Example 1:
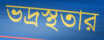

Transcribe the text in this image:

ভদ্রস্থতার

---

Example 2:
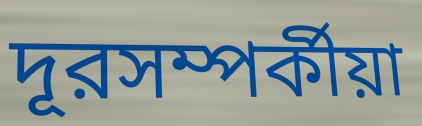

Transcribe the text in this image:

দূরসম্পর্কীয়া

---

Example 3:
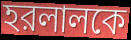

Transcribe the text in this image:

হরলালকে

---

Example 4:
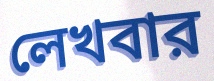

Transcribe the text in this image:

লেখবার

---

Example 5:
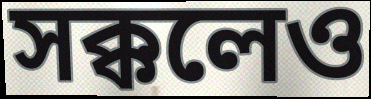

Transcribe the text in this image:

সক্কলেও